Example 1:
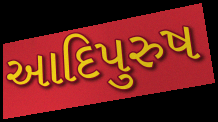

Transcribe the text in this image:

આદિપુરુષ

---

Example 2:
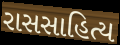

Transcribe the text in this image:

રાસસાહિત્ય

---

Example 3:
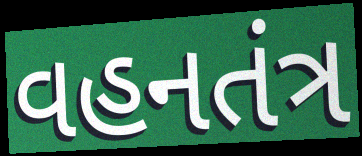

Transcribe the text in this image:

વહનતંત્ર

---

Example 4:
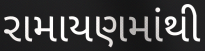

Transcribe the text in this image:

રામાયણમાંથી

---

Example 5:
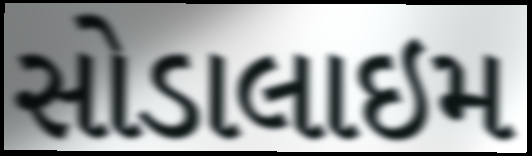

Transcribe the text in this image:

સોડાલાઇમ